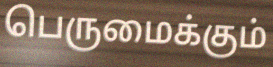
பெருமைக்கும்